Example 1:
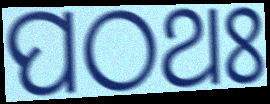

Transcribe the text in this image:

ପଠଥଃ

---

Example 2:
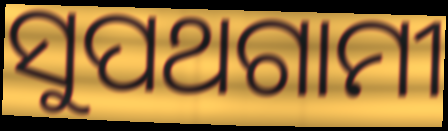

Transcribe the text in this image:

ସୁପଥଗାମୀ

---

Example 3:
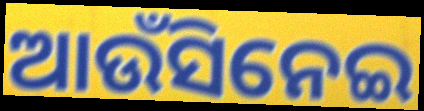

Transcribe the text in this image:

ଆଉଁସିନେଇ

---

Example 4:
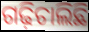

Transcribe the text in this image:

ଗଢ଼ିଚାଲିଛି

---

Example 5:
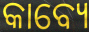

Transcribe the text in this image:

କାବ୍ୟେ